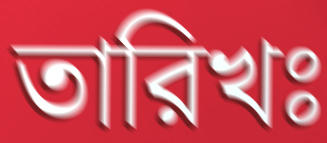
তারিখঃ